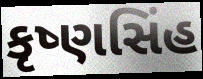
કૃષ્ણસિંહ